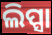
ଲିପ୍ସା